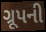
ગ્રૂપની